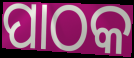
ପାଠକ